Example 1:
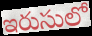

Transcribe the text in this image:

ఇరుసులో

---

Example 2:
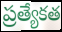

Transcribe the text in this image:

ప్రత్యేకత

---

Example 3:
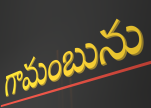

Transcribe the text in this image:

గామంబును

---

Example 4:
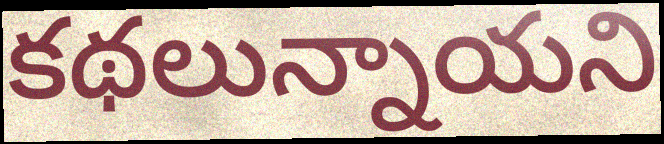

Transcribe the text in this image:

కథలున్నాయని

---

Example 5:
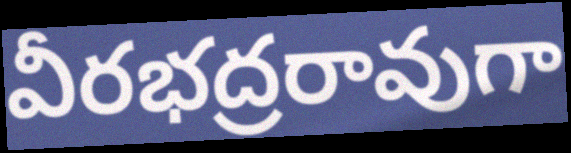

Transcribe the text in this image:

వీరభద్రరావుగా